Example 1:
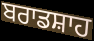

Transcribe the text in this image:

ਬਰਾਡਸ਼ਾਹ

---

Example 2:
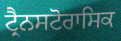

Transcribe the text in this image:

ਟ੍ਰੈਨਸਟੋਰਾਸਿਕ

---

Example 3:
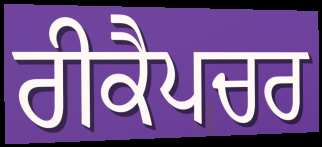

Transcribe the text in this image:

ਰੀਕੈਪਚਰ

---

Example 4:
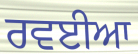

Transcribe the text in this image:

ਰਵਈਆ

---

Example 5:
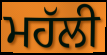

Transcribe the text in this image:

ਮਹੱਲੀ